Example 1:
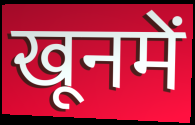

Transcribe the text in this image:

खूनमें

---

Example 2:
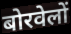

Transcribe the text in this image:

बोरवेलों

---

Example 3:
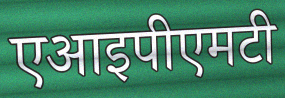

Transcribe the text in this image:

एआइपीएमटी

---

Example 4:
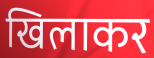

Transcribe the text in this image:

खिलाकर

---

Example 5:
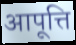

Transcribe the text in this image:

आपूत्ति